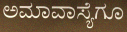
ಅಮಾವಾಸ್ಯೆಗೂ